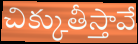
చిక్కుతీస్తావే